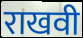
राखवी